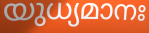
യുധ്യമാനഃ